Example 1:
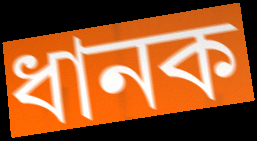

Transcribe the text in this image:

ধানক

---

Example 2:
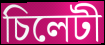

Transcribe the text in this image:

চিলেটী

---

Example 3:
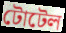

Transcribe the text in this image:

টোটেল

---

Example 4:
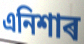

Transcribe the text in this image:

এনিশাৰ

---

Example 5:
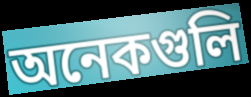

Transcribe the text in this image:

অনেকগুলি